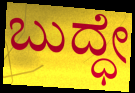
ಬುದ್ಧೇ